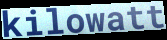
kilowatt